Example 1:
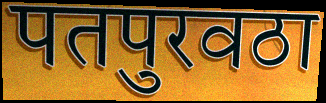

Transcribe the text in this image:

पतपुरवठा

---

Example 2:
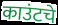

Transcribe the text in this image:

काउंटचे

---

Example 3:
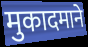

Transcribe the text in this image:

मुकादमाने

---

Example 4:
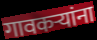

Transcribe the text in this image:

गावकऱ्यांना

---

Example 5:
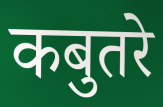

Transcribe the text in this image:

कबुतरे